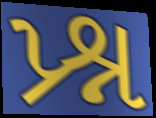
પ્ર્શ્ન